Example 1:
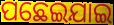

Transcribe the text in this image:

ପଛେଇଯାଇ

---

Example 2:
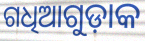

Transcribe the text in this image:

ଗଧିଆଗୁଡ଼ାକ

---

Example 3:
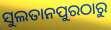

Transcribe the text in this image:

ସୁଲତାନପୁରଠାରୁ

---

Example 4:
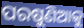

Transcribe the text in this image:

ପରଷୁଣିଆକୁ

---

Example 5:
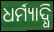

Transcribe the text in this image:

ଧର୍ମ୍ୟାଦ୍ଧି